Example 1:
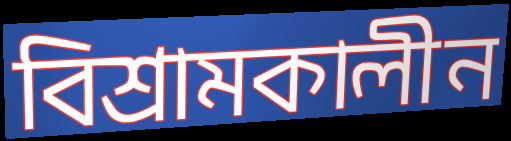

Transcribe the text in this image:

বিশ্রামকালীন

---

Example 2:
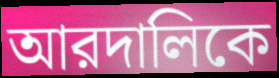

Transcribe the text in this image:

আরদালিকে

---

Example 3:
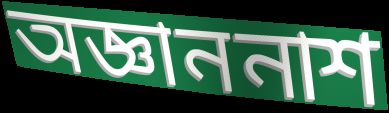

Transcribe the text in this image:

অজ্ঞাননাশ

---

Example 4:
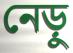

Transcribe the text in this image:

নেড়ু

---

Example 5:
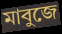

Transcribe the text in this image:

মাবুজে